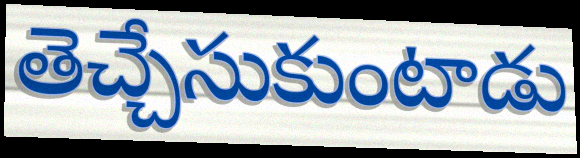
తెచ్చేసుకుంటాడు